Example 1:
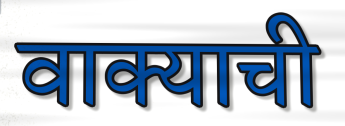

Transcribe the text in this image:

वाक्याची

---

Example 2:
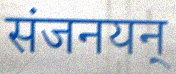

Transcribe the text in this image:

संजनयन्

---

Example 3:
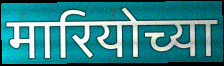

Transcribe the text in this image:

मारियोच्या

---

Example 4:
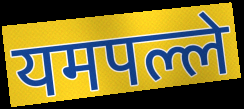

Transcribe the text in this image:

यमपल्ले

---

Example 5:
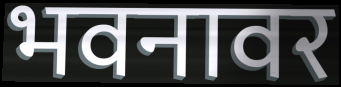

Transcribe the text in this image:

भवनावर